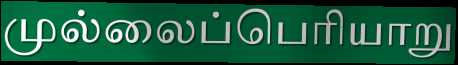
முல்லைப்பெரியாறு